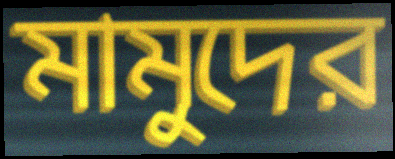
মামুদের